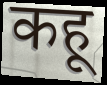
कहू